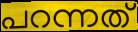
പറന്നത്